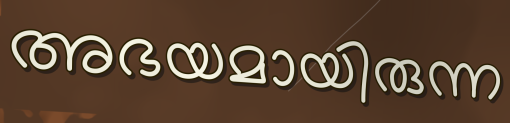
അഭയമായിരുന്ന